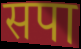
सपा